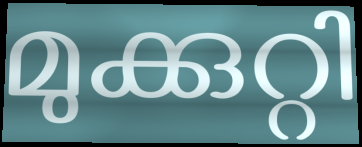
മുക്കുറ്റി